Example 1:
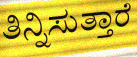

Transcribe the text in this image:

ತಿನ್ನಿಸುತ್ತಾರೆ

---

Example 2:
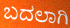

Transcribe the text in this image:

ಬದಲಾಗಿ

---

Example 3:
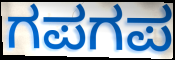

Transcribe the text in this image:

ಗಪಗಪ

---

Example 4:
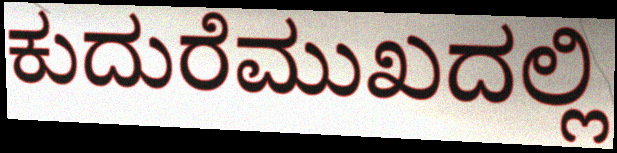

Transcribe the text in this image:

ಕುದುರೆಮುಖದಲ್ಲಿ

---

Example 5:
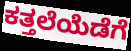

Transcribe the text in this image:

ಕತ್ತಲೆಯೆಡೆಗೆ